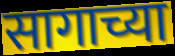
सागाच्या